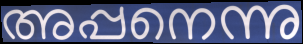
അപ്പനെന്നു